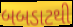
બબડાટથી